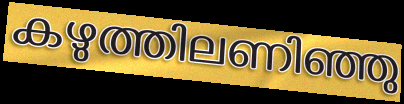
കഴുത്തിലണിഞ്ഞു